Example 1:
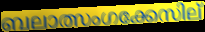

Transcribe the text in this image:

ബലാത്സംഗക്കേസില്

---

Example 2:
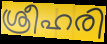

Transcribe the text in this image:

ശ്രീഹരി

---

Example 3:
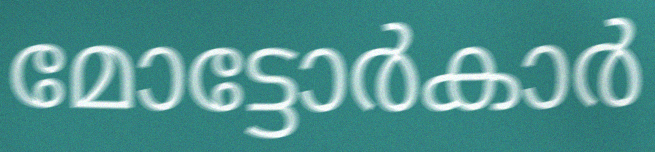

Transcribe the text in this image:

മോട്ടോർകാർ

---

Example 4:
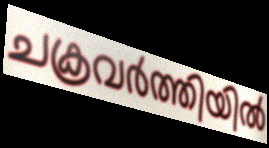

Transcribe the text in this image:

ചക്രവർത്തിയിൽ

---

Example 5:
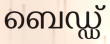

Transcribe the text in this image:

ബെഡ്ഡ്